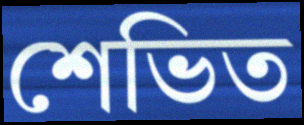
শেভিত